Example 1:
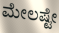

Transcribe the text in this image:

ಮೇಲಷ್ಟೇ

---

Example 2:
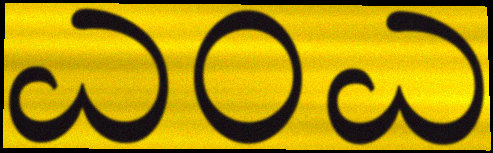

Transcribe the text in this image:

ಎಂಎ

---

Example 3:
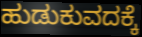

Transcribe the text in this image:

ಹುಡುಕುವದಕ್ಕೆ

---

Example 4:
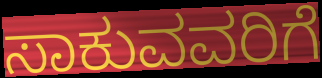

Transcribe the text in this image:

ಸಾಕುವವರಿಗೆ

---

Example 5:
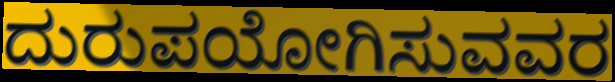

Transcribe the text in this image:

ದುರುಪಯೋಗಿಸುವವರ